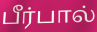
பீர்பால்